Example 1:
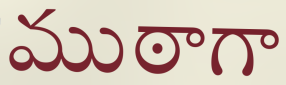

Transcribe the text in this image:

ముఠాగా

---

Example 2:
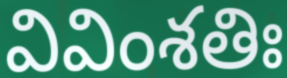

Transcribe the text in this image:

వివింశతిః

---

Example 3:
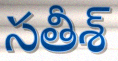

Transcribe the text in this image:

సతీశ్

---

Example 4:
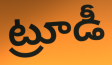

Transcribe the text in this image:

ట్రూడీ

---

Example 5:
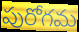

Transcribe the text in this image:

పురోగమ